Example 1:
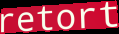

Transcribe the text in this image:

retort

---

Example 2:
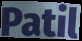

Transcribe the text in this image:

Patil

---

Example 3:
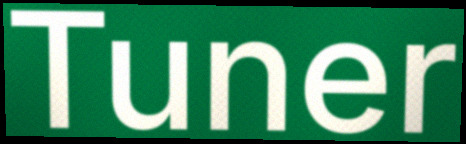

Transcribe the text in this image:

Tuner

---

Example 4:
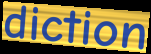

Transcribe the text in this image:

diction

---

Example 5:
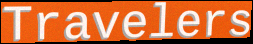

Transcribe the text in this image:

Travelers